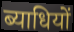
ब्याधियों